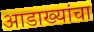
आडाख्यांचा